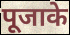
पूजाके